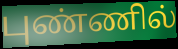
புண்ணில்